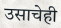
उसाचेही